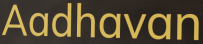
Aadhavan